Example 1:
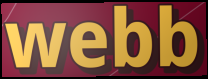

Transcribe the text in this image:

webb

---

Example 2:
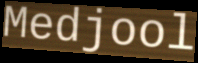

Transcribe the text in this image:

Medjool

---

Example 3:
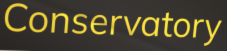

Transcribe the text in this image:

Conservatory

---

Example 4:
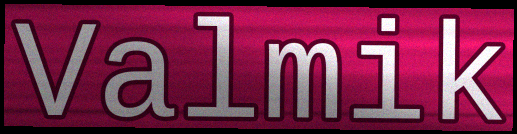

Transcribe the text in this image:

Valmik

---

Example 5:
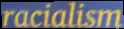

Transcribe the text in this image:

racialism